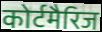
कोर्टमैरिज